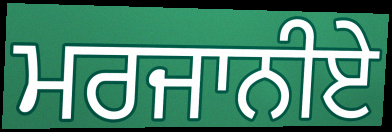
ਮਰਜਾਨੀਏ